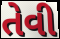
તેવી